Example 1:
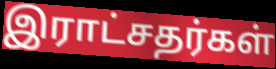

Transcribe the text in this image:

இராட்சதர்கள்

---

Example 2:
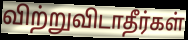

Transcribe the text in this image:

விற்றுவிடாதீர்கள்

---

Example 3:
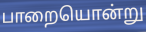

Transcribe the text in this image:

பாறையொன்று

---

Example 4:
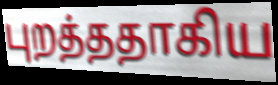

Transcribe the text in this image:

புறத்ததாகிய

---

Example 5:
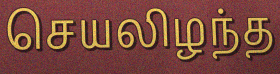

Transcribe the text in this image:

செயலிழந்த